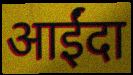
आईंदा